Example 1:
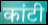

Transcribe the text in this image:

कांटी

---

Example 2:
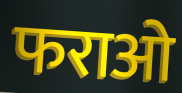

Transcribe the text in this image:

फराओ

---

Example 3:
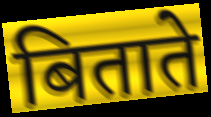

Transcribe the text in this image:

बिताते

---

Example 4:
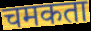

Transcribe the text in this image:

चमकता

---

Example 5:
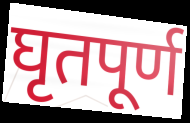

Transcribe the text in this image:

घृतपूर्ण